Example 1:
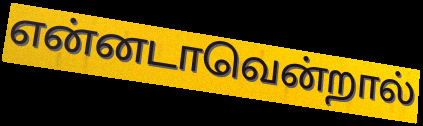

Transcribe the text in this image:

என்னடாவென்றால்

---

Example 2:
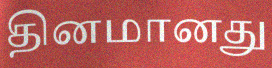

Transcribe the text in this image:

தினமானது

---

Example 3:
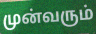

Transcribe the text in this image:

முன்வரும்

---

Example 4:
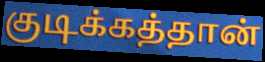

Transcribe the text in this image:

குடிக்கத்தான்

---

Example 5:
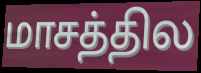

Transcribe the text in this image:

மாசத்தில